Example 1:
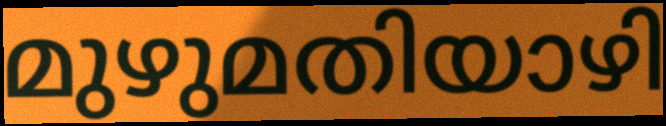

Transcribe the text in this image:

മുഴുമതിയാഴി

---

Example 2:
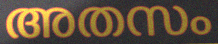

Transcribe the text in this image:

അതസം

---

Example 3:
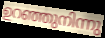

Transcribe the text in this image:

ഉറഞ്ഞുനിന്നു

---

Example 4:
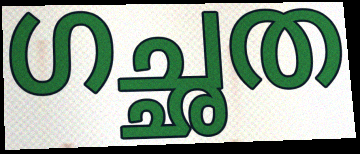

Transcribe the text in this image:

ഗച്ഛത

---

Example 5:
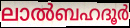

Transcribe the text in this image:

ലാൽബഹദൂർ